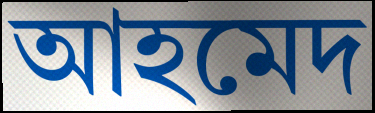
আহমেদ